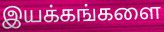
இயக்கங்களை